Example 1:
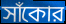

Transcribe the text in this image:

সাঁকোর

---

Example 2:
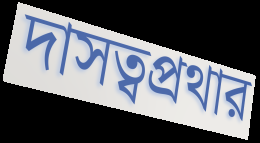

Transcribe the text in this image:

দাসত্বপ্রথার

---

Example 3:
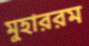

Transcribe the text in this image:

মুহাররম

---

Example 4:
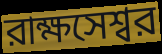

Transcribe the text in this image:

রাক্ষসেশ্বর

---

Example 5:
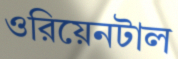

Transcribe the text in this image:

ওরিয়েনটাল